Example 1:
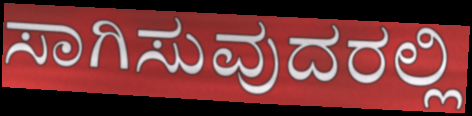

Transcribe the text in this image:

ಸಾಗಿಸುವುದರಲ್ಲಿ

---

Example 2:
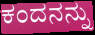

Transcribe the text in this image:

ಕಂದನನ್ನು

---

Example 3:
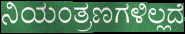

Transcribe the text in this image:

ನಿಯಂತ್ರಣಗಳಿಲ್ಲದೆ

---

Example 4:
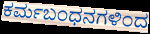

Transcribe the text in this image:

ಕರ್ಮಬಂಧನಗಳಿಂದ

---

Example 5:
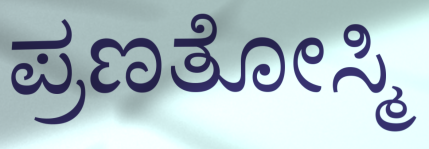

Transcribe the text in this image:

ಪ್ರಣತೋಸ್ಮಿ